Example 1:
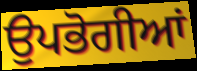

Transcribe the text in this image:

ਉਪਭੋਗੀਆਂ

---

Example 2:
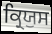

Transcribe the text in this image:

ਕ੍ਰਿਯੁਸ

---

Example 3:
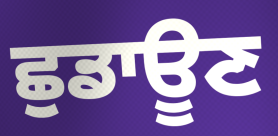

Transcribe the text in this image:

ਛੁਡਾਊਣ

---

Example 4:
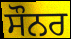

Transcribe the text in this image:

ਸੌਨਰ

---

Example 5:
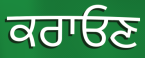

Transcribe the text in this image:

ਕਰਾਓਣ